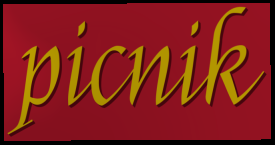
picnik